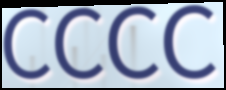
CCCC